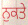
ਨੁਕਤੇ